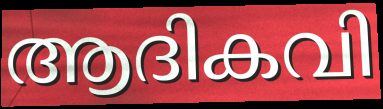
ആദികവി